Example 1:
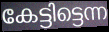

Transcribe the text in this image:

കേട്ടിട്ടെന്ന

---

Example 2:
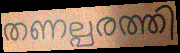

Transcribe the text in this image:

തണല്പരത്തി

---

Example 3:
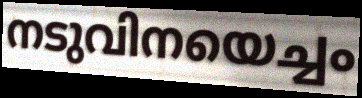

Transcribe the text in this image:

നടുവിനയെച്ചം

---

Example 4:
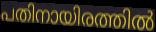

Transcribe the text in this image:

പതിനായിരത്തിൽ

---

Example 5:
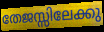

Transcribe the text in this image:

തേജസ്സിലേക്കു